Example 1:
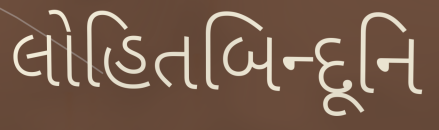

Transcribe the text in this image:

લોહિતબિન્દૂનિ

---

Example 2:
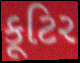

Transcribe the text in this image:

કૂટિર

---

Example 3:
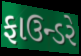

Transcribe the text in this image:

ફાઉન્ડરે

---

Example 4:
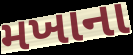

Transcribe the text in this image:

મખાના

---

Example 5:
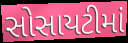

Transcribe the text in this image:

સોસાયટીમાં